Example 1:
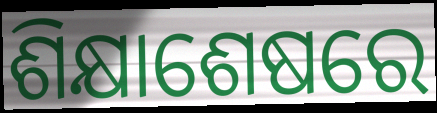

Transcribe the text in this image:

ଶିକ୍ଷାଶେଷରେ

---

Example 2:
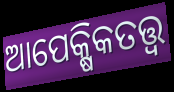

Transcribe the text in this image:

ଆପେକ୍ଷିକତତ୍ତ୍ୱ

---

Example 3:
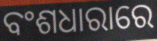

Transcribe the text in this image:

ବଂଶଧାରାରେ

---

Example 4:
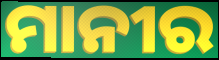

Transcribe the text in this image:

ମାନୀର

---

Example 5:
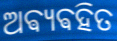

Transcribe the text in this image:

ଅଵ୍ୟଵହିତ